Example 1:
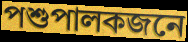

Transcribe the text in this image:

পশুপালকজনে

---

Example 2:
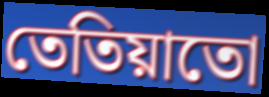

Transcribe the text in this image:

তেতিয়াতো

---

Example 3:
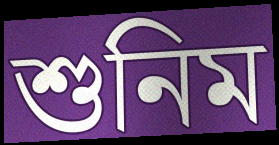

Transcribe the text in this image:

শুনিম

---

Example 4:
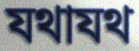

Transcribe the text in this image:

যথাযথ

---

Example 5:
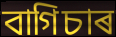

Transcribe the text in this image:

বাগিচাৰ